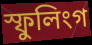
স্ফুলিংগ